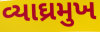
વ્યાઘ્રમુખ